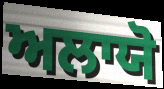
ਅਲਾਯੋ